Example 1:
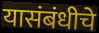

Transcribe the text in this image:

यासंबंधीचे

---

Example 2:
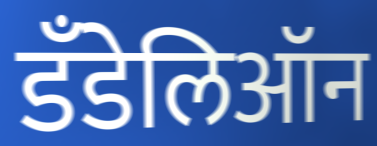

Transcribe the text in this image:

डँडेलिऑन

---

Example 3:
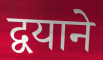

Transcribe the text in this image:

द्वयाने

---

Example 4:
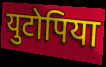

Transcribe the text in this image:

युटोपिया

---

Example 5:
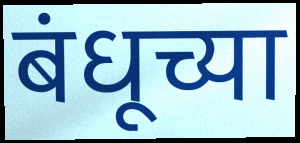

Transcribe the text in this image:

बंधूच्या